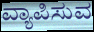
ವ್ಯಾಪಿಸುವ